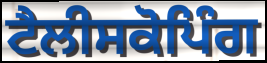
ਟੈਲੀਸਕੋਪਿੰਗ